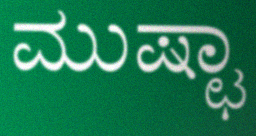
ಮುಷ್ಟಾ